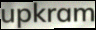
upkram